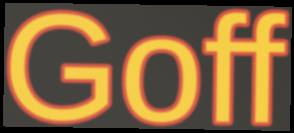
Goff